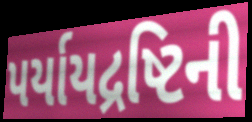
પર્યાયદ્રષ્ટિની